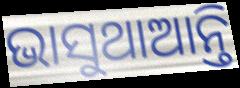
ଭାସୁଥାଆନ୍ତି